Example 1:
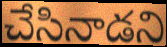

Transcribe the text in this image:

చేసినాడని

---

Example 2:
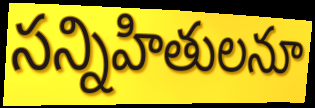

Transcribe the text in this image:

సన్నిహితులనూ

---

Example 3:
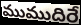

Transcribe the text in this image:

ముముదిరే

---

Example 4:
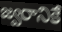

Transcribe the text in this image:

జ్వరానికే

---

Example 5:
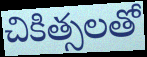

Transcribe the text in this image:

చికిత్సలతో